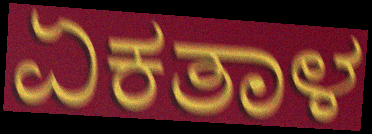
ಏಕತಾಳ